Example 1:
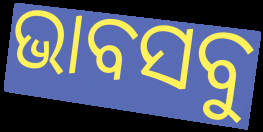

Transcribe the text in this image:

ଭାବସବୁ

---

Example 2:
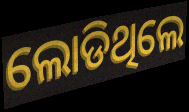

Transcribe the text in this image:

ଲୋଡିଥିଲେ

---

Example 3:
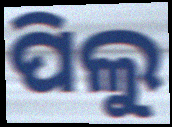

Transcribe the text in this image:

ପିଲୁ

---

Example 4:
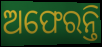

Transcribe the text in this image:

ଅଫେରନ୍ତି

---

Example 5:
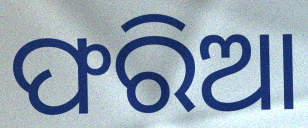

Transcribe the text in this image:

ଫରିଆ